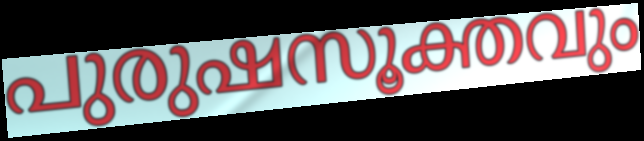
പുരുഷസൂക്തവും